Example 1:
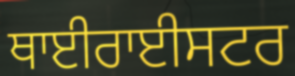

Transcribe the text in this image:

ਥਾਈਰਾਈਸਟਰ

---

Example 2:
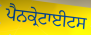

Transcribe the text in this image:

ਪੈਨਕ੍ਰੇਟਾਈਟਸ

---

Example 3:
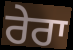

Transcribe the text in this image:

ਰੇਰਾ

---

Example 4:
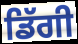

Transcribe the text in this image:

ਡਿੱਗੀ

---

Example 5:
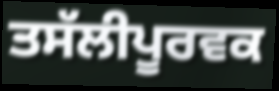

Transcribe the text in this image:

ਤਸੱਲੀਪੂਰਵਕ